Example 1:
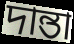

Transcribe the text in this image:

দান্তা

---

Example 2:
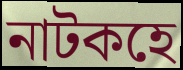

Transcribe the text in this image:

নাটকহে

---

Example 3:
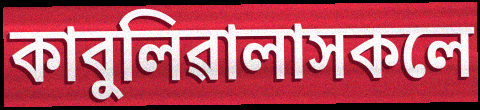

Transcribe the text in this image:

কাবুলিৱালাসকলে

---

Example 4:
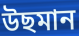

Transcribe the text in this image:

উছমান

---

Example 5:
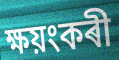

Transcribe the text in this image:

ক্ষয়ংকৰী